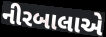
નીરબાલાએ